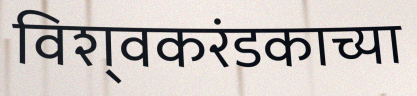
विश्वकरंडकाच्या